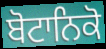
ਬੋਟਾਨਿਕੋ